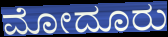
ಮೋದೂರು